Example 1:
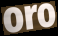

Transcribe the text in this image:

oro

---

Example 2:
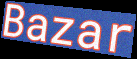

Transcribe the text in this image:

Bazar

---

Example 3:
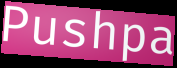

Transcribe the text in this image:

Pushpa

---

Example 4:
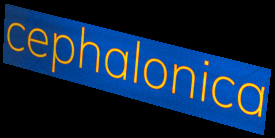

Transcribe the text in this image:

cephalonica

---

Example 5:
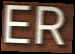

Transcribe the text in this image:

ER